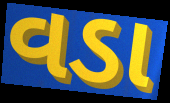
વડા